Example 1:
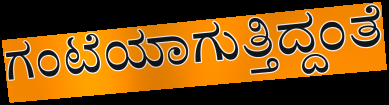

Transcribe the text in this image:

ಗಂಟೆಯಾಗುತ್ತಿದ್ದಂತೆ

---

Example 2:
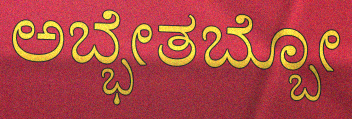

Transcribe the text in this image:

ಅಬ್ಭೇತಬ್ಬೋ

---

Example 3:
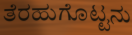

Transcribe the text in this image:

ತೆರಹುಗೊಟ್ಟನು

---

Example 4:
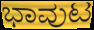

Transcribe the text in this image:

ಭಾವುಟ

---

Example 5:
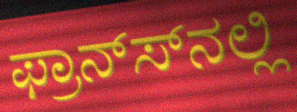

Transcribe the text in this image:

ಫ್ರಾನ್ಸ್‍ನಲ್ಲಿ